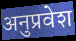
अनुप्रवेश